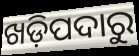
ଖଡ଼ିପଦାରୁ